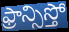
ఫ్రాన్సిస్తో